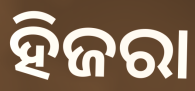
ହିଜରା